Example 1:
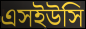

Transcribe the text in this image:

এসইউসি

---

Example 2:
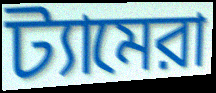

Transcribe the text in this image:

ট্যামেরা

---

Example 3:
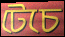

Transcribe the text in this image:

টেচে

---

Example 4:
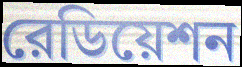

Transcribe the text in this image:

রেডিয়েশন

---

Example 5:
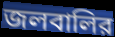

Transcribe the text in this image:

জলবালির